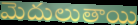
మెదులుతాయి